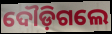
ଦୌଡ଼ିଗଲେ